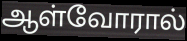
ஆள்வோரால்